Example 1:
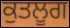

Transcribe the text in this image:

ਕੁਤਲੂਗ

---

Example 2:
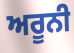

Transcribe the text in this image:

ਅਰੂਨੀ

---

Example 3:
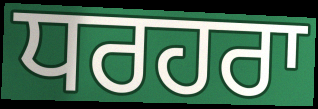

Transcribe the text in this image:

ਧਰਹਰਾ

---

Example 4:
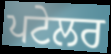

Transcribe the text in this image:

ਪਟੇਲਰ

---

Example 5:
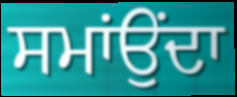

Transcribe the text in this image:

ਸਮਾਂਉਂਦਾ